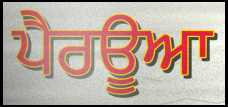
ਪੈਰਊਆ